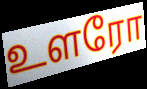
உளரோ